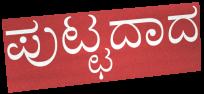
ಪುಟ್ಟದಾದ